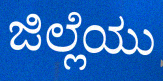
ಜಿಲ್ಲೆಯು